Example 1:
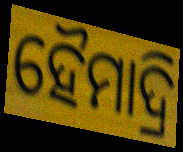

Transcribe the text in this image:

ହୈମାଦ୍ରି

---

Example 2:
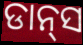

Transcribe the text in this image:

ଡାନ୍‍ସ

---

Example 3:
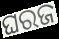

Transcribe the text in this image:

ଘରଜ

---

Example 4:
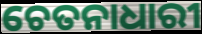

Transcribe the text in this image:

ଚେତନାଧାରୀ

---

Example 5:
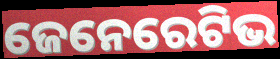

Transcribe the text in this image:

ଜେନେରେଟିଭ